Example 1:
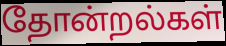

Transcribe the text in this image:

தோன்றல்கள்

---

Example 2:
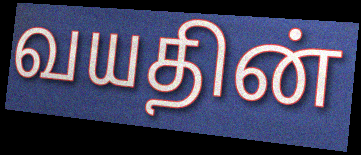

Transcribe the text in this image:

வயதின்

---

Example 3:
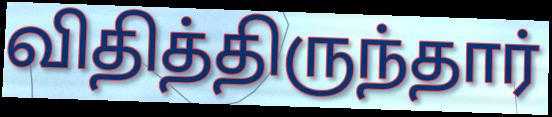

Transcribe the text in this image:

விதித்திருந்தார்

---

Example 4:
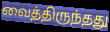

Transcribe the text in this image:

வைத்திருந்தது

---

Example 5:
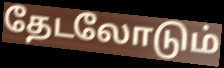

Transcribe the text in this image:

தேடலோடும்